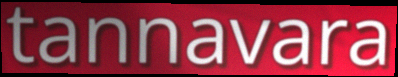
tannavara